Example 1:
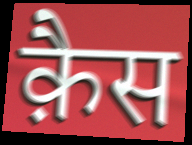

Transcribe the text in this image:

क़ैस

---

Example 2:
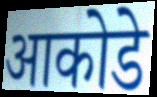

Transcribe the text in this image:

आकोडे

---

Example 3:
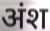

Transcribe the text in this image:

अंश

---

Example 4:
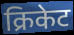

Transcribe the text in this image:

क्रिकेट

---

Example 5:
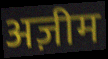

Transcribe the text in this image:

अज़ीम